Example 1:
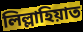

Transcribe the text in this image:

লিল্লাহিয়াত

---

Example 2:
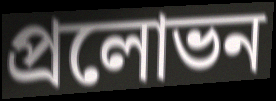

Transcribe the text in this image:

প্রলোভন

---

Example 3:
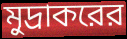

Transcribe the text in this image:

মুদ্রাকরের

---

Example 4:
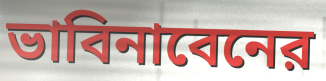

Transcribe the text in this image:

ভাবিনাবেনের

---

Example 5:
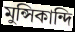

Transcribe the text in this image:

মুন্সিকান্দি